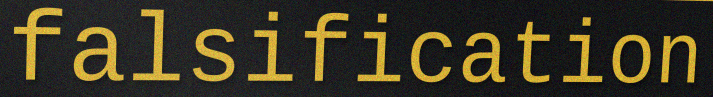
falsification